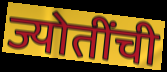
ज्योतींची